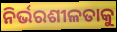
ନିର୍ଭରଶୀଳତାକୁ